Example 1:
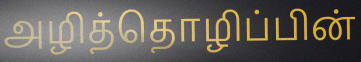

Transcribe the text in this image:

அழித்தொழிப்பின்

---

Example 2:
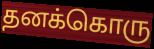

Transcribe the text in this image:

தனக்கொரு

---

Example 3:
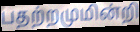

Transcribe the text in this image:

பதற்றமுமின்றி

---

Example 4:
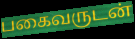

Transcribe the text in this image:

பகைவருடன்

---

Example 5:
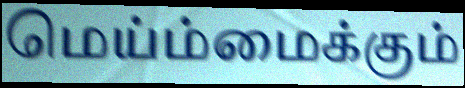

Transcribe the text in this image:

மெய்ம்மைக்கும்